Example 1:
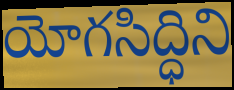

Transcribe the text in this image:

యోగసిద్ధిని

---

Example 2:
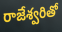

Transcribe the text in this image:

రాజేశ్వరితో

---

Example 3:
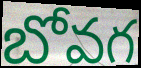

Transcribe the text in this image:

బోవగ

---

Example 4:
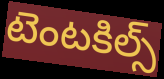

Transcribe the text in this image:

టెంటకిల్స్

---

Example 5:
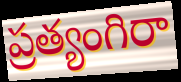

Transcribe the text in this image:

ప్రత్యంగిరా